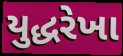
યુદ્ધરેખા